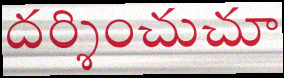
దర్శించుచూ